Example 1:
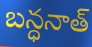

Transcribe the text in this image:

బన్ధనాత్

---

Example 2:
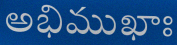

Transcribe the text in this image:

అభిముఖాః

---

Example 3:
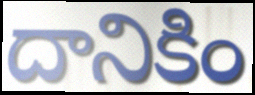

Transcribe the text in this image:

దానికిం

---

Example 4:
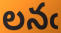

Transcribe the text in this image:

లనఁ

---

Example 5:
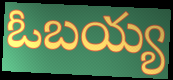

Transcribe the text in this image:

ఓబయ్య